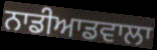
ਨਾਡੀਆਡਵਾਲਾ